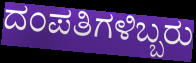
ದಂಪತಿಗಳಿಬ್ಬರು